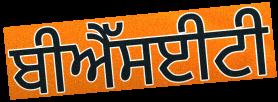
ਬੀਐੱਸਈਟੀ